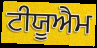
ਟੀਯੂਐਮ